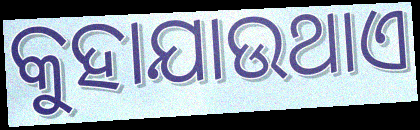
କୁହାଯାଉଥାଏ